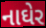
નાઘેર